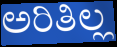
ಅರಿತಿಲ್ಲ